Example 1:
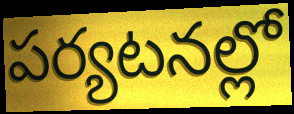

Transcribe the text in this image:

పర్యటనల్లో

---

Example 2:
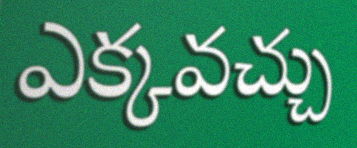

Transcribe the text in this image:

ఎక్కవచ్చు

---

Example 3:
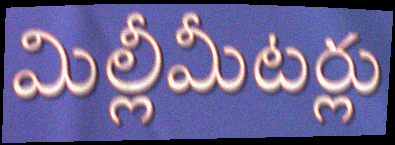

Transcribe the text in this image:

మిల్లీమీటర్లు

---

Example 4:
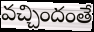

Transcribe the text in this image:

వచ్చిందంతే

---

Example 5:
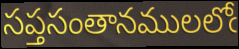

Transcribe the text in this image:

సప్తసంతానములలోఁ